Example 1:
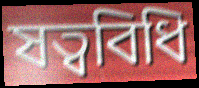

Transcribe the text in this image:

ষত্ববিধি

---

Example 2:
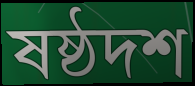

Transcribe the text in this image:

ষষ্ঠদশ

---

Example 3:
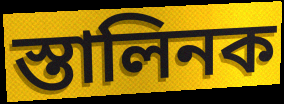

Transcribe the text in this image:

স্তালিনক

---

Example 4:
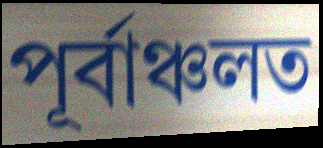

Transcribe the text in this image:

পূৰ্বাঞ্চলত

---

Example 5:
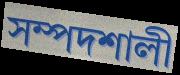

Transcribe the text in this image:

সম্পদশালী